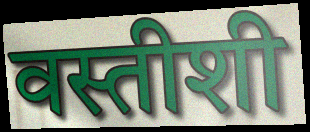
वस्‍तीशी